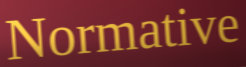
Normative